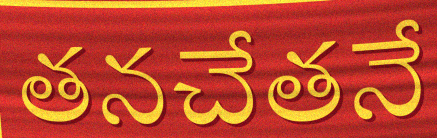
తనచేతనే